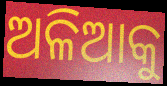
ଅଳିଆକୁ